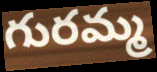
గురమ్మ